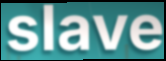
slave